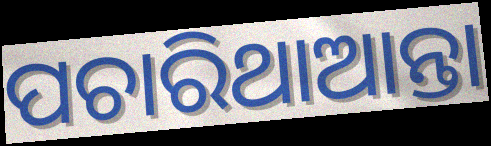
ପଚାରିଥାଆନ୍ତା